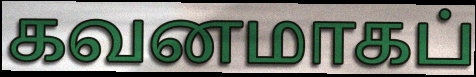
கவனமாகப்